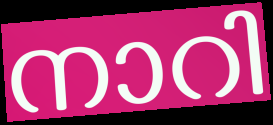
നാറി